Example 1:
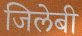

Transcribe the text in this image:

जिलेबी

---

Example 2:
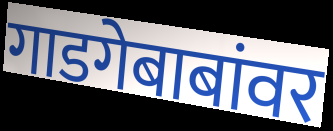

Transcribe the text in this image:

गाडगेबाबांवर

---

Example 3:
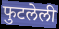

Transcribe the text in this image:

फुटलेली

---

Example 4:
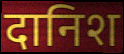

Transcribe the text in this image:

दानिश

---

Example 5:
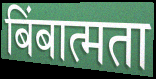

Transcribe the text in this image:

बिंबात्मता